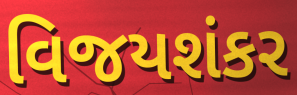
વિજયશંકર